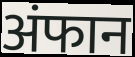
अंफान